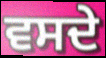
ਵਸਦੇ